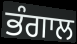
ਭੰਗਾਲ